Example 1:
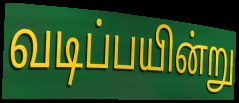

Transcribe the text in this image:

வடிப்பயின்று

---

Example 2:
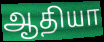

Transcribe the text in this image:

ஆதியா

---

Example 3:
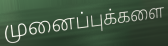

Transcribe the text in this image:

முனைப்புக்களை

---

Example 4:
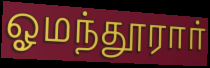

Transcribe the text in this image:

ஓமந்தூரார்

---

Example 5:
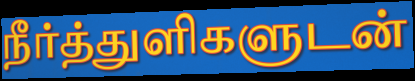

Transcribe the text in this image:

நீர்த்துளிகளுடன்